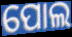
ପୋଲ